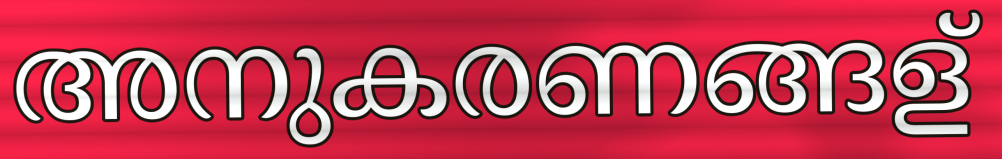
അനുകരണങ്ങള്